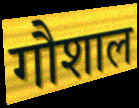
गौशाल